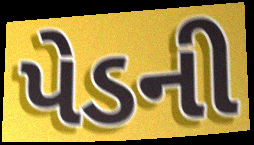
પેડની